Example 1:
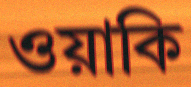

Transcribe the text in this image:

ওয়াকি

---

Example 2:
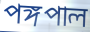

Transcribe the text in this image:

পঙ্গপাল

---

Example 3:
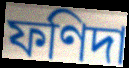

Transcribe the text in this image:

ফণিদা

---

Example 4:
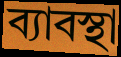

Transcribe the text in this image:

ব্যাবস্থা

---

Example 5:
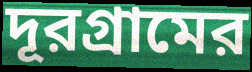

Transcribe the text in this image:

দূরগ্রামের